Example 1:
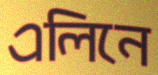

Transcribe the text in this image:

এলিনে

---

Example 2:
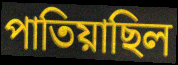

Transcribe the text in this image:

পাতিয়াছিল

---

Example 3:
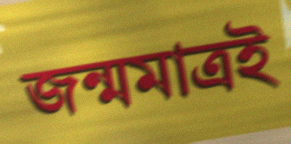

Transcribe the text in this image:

জন্মমাত্রই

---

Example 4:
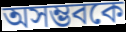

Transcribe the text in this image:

অসম্ভবকে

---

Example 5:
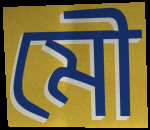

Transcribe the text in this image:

মৌ